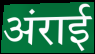
अंराई